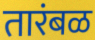
तारंबळ